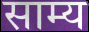
साम्‍य